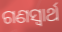
ଗଣସ୍ୱାର୍ଥ